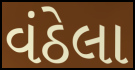
વંઠેલા